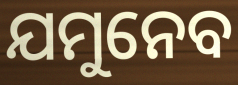
ଯମୁନେବ